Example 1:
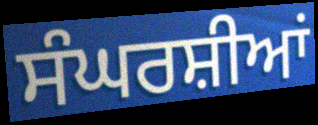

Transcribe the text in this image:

ਸੰਘਰਸ਼ੀਆਂ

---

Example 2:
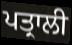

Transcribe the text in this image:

ਪਤ੍ਰਾਲੀ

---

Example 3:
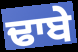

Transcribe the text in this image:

ਢਾਬੇ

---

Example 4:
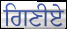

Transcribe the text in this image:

ਗਿਣੀਏ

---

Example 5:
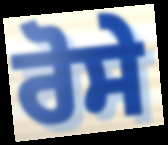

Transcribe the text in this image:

ਰੋਸੇ